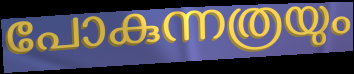
പോകുന്നത്രയും